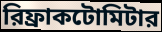
রিফ্রাকটোমিটার